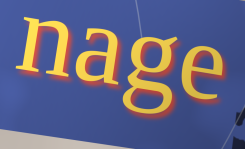
nage